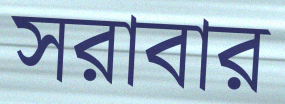
সরাবার